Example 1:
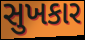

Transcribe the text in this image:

સુખકાર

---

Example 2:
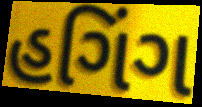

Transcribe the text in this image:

હગિંગ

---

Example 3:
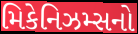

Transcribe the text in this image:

મિકેનિઝમ્સનો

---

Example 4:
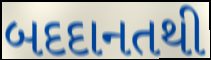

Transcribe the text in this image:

બદદાનતથી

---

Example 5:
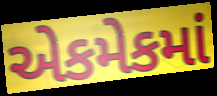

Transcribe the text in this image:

એકમેકમાં